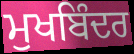
ਮੁਖਬਿੰਦਰ